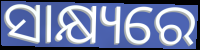
ସାକ୍ଷ୍ୟରେ